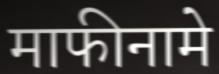
माफीनामे